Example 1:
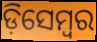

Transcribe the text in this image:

ଡ଼ିସେମ୍ୱର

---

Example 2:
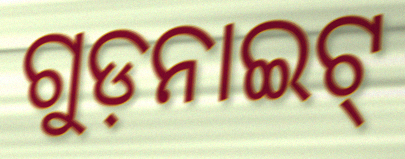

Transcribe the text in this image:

ଗୁଡ଼ନାଇଟ୍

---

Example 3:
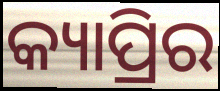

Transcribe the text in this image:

କ୍ୟାପ୍ରିର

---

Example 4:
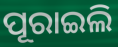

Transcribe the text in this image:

ପୂରାଇଲି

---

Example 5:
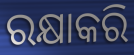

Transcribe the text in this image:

ରକ୍ଷାକରି